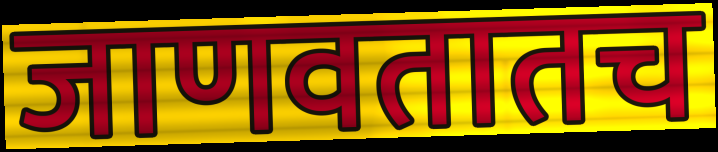
जाणवतातच